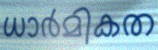
ധാർമികത